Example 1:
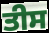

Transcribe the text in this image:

ਤੀਸ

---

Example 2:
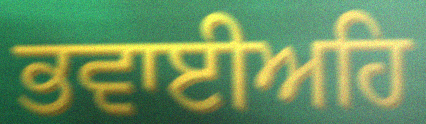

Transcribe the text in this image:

ਭਵਾਈਅਹਿ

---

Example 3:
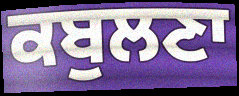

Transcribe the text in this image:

ਕਬੁਲਣਾ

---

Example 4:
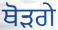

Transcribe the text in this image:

ਥੋੜਗੇ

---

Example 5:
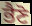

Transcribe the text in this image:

ਭੈਣੋ